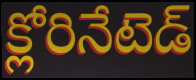
క్లోరినేటెడ్